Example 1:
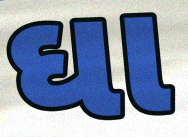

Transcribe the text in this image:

ઘા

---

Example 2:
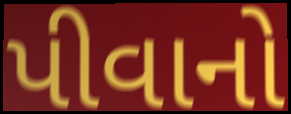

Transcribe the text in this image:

પીવાનો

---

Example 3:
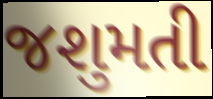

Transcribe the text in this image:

જશુમતી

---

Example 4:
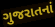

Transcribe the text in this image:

ગુજરાતનાં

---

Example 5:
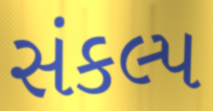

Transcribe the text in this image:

સંકલ્પ